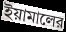
ইয়ামালের